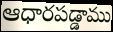
ఆధారపడ్డాము